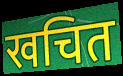
खचित